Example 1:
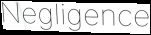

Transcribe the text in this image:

Negligence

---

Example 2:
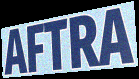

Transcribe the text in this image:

AFTRA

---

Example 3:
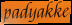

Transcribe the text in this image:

padyakke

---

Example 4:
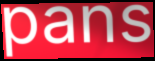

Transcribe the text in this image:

pans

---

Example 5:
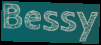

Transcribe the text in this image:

Bessy